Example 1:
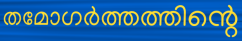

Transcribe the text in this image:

തമോഗർത്തത്തിന്റെ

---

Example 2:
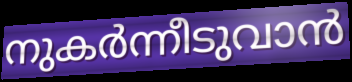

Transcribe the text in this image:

നുകർന്നീടുവാൻ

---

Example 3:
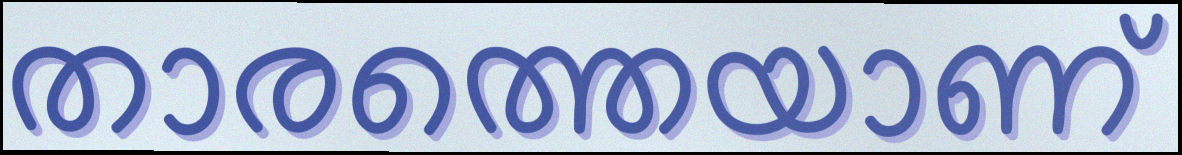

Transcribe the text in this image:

താരത്തെയാണ്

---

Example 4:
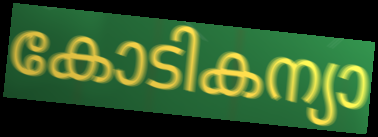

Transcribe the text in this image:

കോടികന്യാ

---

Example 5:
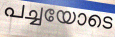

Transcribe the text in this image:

പച്ചയോടെ